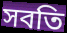
সবতি